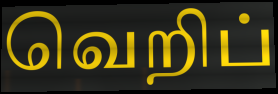
வெறிப்